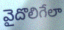
వైదొలిగేలా